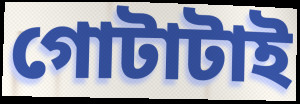
গোটাটাই